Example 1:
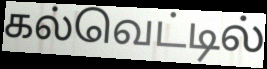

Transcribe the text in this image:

கல்வெட்டில்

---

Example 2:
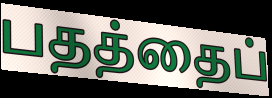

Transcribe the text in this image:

பதத்தைப்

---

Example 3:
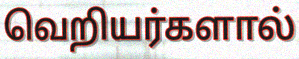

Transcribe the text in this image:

வெறியர்களால்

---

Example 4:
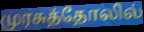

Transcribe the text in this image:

முரசுத்தோலில்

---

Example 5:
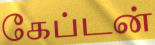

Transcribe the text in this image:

கேப்டன்